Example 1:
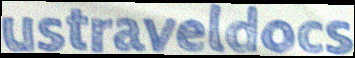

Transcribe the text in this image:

ustraveldocs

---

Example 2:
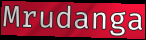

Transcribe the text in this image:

Mrudanga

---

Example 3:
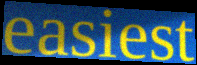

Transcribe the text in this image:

easiest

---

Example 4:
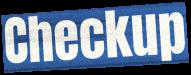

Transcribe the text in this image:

Checkup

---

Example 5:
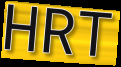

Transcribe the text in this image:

HRT